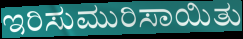
ಇರಿಸುಮುರಿಸಾಯಿತು